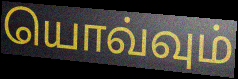
யொவ்வும்